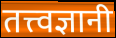
तत्त्वज्ञानी